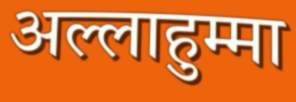
अल्लाहुम्मा